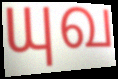
யுவ